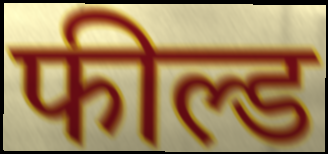
फील्‍ड